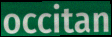
occitan